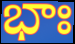
భాః